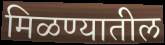
मिळण्यातील